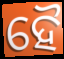
ହୈ